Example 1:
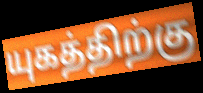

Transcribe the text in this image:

யுகத்திற்கு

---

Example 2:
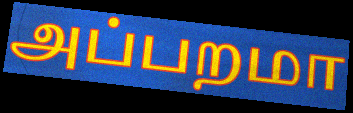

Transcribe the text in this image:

அப்பறமா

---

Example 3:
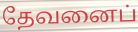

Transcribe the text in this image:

தேவனைப்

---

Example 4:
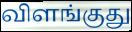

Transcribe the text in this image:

விளங்குது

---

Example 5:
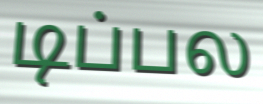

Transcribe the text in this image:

டிப்பல